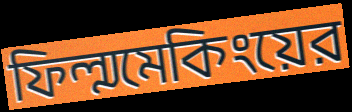
ফিল্মমেকিংয়ের